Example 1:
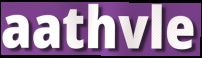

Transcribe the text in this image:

aathvle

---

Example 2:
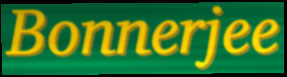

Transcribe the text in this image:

Bonnerjee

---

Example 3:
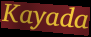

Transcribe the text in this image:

Kayada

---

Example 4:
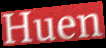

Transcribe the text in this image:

Huen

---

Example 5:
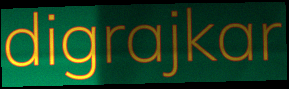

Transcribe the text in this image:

digrajkar